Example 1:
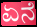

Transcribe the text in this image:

ಏನೆ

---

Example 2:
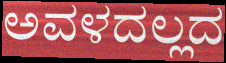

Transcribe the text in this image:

ಅವಳದಲ್ಲದ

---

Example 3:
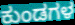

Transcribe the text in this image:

ಕುಂಡಗಳ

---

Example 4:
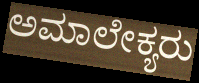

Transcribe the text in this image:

ಅಮಾಲೇಕ್ಯರು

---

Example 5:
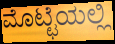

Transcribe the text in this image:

ಮೊಟ್ಟೆಯಲ್ಲಿ